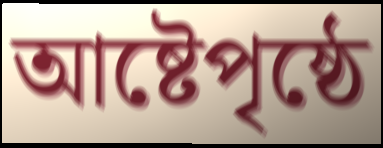
আষ্টেপৃষ্ঠে